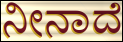
ನೀನಾದೆ